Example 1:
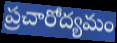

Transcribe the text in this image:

ప్రచారోద్యమం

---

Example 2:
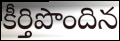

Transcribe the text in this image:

కీర్తిపొందిన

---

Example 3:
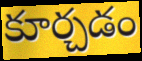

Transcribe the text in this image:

కూర్చడం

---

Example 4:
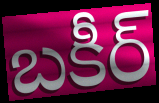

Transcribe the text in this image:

బకీర్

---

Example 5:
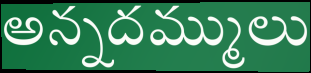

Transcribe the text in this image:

అన్నదమ్ములు